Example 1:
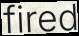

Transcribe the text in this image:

fired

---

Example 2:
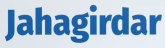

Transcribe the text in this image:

Jahagirdar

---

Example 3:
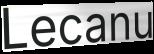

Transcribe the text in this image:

Lecanu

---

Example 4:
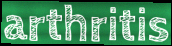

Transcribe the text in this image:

arthritis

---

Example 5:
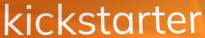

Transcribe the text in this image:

kickstarter